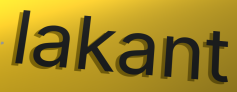
lakant